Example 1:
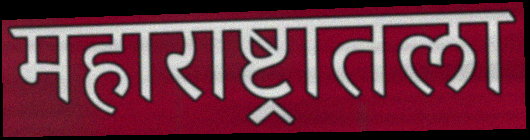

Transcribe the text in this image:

महाराष्ट्रातला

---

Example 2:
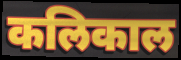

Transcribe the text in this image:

कलिकाल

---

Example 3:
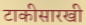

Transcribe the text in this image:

टाकीसारखी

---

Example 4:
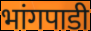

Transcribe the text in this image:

भांगपाडी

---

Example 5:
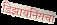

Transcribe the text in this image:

डिझायनिंगचा